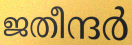
ജതീന്ദർ